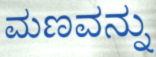
ಮಣವನ್ನು